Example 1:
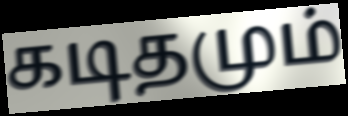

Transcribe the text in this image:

கடிதமும்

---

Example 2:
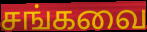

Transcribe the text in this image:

சங்கவை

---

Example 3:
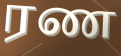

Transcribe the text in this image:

ரண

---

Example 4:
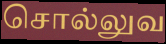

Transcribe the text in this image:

சொல்லுவ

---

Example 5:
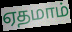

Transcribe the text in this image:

ஏதமாம்